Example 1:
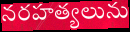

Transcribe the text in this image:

నరహత్యలును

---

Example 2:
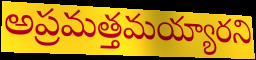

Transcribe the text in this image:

అప్రమత్తమయ్యారని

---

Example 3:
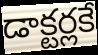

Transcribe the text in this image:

డాక్టర్లకే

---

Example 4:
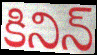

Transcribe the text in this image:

కినిన్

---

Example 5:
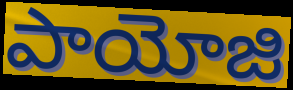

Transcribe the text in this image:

పాయోజి